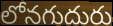
లోనగుదురు